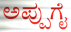
ಅಪ್ಪುಗೈ